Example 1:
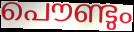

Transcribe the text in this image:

പൌണ്ടും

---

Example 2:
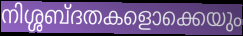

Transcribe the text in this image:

നിശ്ശബ്ദതകളൊക്കെയും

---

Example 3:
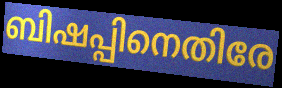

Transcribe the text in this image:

ബിഷപ്പിനെതിരേ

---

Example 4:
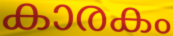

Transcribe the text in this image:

കാരകം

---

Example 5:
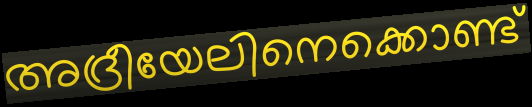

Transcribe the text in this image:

അദ്രീയേലിനെക്കൊണ്ട്